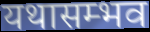
यथासम्भव